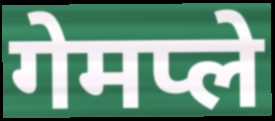
गेमप्ले